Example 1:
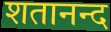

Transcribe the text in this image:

शतानन्द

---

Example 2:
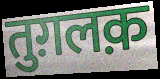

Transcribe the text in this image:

तुग़लक़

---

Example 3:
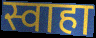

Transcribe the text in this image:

स्‍वाहा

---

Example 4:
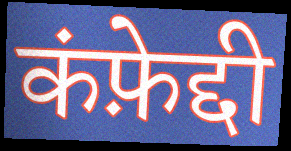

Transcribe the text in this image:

कंफ़ेद्दी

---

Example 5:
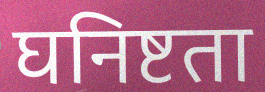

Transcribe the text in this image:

घनिष्टता